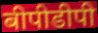
बीपीडीपी